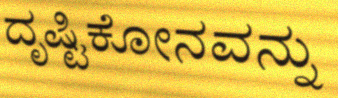
ದೃಷ್ಟಿಕೋನವನ್ನು